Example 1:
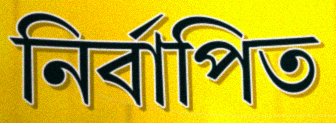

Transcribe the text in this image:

নির্বাপিত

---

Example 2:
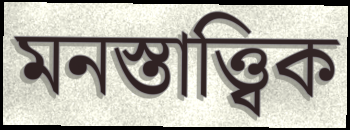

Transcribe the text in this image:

মনস্তাত্ত্বিক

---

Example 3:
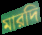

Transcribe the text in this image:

মারদি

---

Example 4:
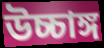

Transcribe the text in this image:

উচ্চাঙ্গ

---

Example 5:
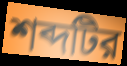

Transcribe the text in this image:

শব্দটির